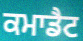
ਕਮਾਡੈਟ